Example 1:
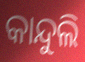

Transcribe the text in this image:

କାନ୍ଦୁଲି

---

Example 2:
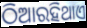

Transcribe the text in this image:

ଠିଆରହିଥାଏ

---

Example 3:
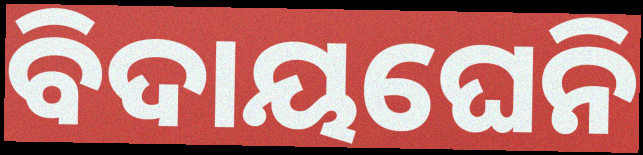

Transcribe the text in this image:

ବିଦାୟଘେନି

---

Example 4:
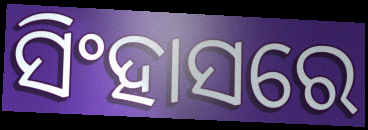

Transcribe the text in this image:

ସିଂହାସରେ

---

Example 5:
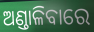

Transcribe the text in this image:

ଅଣ୍ଡାଳିବାରେ